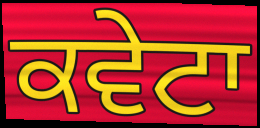
ਕਵੇਟਾ